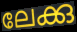
ലേക്കു